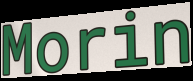
Morin